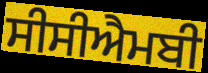
ਸੀਸੀਐਮਬੀ